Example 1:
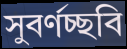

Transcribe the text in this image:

সুবর্ণচ্ছবি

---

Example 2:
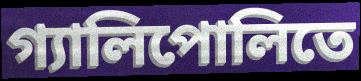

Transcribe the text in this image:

গ্যালিপোলিতে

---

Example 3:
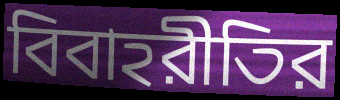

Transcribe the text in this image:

বিবাহরীতির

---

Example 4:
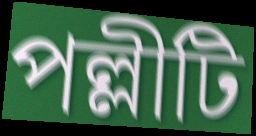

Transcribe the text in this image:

পল্লীটি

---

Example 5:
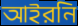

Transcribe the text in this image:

আইরনি